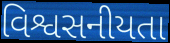
વિશ્વસનીયતા